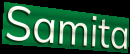
Samita